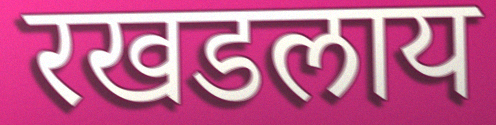
रखडलाय